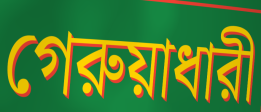
গেরুয়াধারী